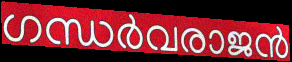
ഗന്ധർവരാജൻ